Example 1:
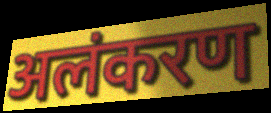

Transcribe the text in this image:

अलंकरण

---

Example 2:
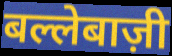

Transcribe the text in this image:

बल्लेबाज़ी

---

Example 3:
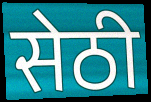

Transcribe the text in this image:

सेठी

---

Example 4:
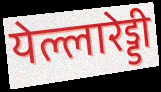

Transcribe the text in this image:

येल्लारेड्डी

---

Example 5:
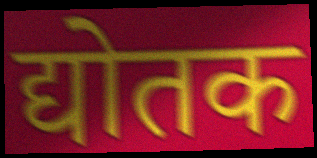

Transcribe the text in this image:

द्योतक